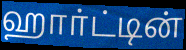
ஹார்ட்டின்